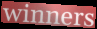
winners